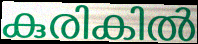
കുരികിൽ